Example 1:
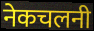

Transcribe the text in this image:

नेकचलनी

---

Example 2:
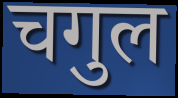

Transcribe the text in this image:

चगुल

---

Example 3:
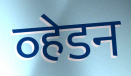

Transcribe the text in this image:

व्हेडन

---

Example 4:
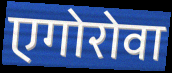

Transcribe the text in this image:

एगोरोवा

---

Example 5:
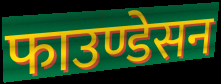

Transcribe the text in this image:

फाउण्डेसन